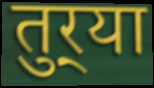
तुर्या